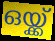
ഒയ്ക്ക്